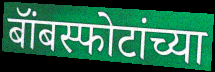
बॉंबस्फोटांच्या